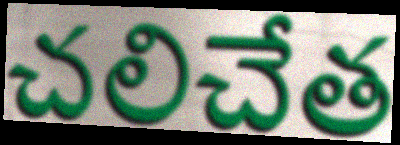
చలిచేత